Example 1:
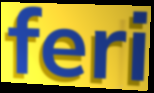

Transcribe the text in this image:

feri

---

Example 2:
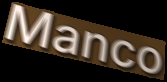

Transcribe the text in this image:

Manco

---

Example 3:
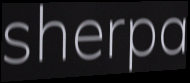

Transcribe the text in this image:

sherpa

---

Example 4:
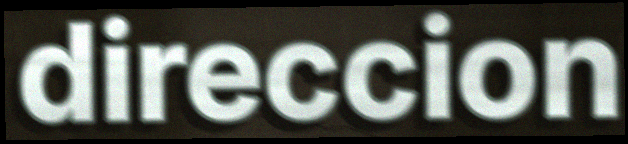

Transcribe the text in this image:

direccion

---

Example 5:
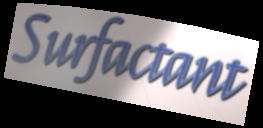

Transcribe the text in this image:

Surfactant